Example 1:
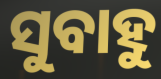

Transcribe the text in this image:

ସୁବାହୁ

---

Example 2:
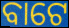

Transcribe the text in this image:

ବାଟେ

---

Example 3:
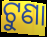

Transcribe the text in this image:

ଟୁଣା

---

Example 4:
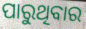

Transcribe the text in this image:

ପାରୁଥିବାର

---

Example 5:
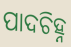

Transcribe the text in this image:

ପାଦଚିହ୍ନ